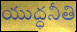
యుద్ధనీతి